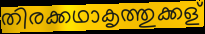
തിരക്കഥാകൃത്തുക്കള്